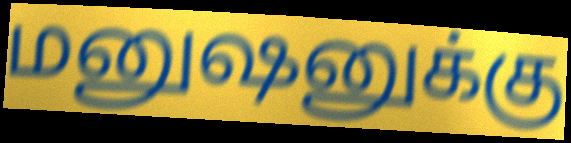
மனுஷனுக்கு